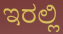
ಇರಲ್ಲಿ